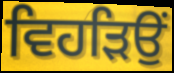
ਵਿਹੜਿਉਂ